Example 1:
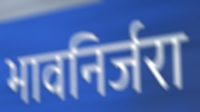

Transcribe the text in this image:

भावनिर्जरा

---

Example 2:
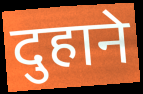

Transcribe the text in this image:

दुहाने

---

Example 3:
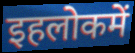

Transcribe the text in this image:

इहलोकमें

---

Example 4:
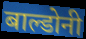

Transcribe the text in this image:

बाल्डोनी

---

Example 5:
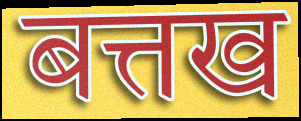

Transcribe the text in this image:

बत्तख